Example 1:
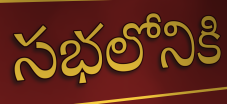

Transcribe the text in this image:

సభలోనికి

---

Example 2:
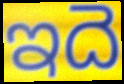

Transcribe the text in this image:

ఇదె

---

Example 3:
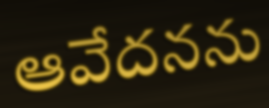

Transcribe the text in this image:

ఆవేదనను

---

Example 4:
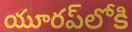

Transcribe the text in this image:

యూరప్‌లోకి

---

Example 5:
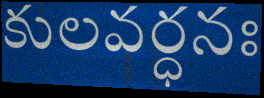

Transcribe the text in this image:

కులవర్ధనః